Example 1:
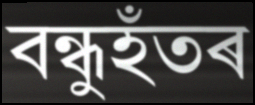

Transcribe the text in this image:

বন্ধুহঁতৰ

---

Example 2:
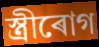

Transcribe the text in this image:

স্ত্ৰীৰোগ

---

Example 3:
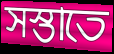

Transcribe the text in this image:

সস্তাতে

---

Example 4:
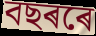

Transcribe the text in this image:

বছৰৰে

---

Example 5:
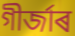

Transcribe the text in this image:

গীৰ্জাৰ